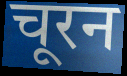
चूरन